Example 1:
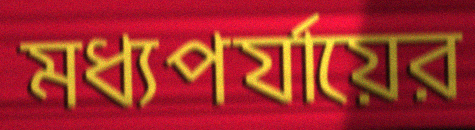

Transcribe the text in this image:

মধ্যপর্যায়ের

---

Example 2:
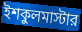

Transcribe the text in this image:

ইশকুলমাস্টার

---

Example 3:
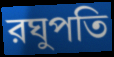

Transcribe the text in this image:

রঘুপতি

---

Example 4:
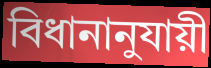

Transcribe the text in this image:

বিধানানুযায়ী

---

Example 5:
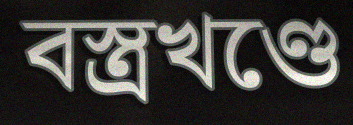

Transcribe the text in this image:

বস্ত্রখণ্ডে